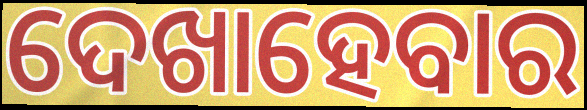
ଦେଖାହେବାର